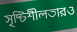
সৃষ্টিশীলতারও